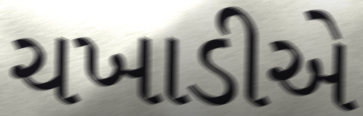
ચખાડીએ